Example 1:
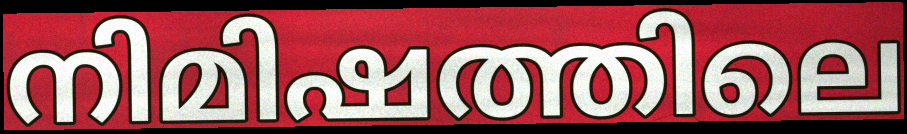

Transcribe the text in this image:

നിമിഷത്തിലെ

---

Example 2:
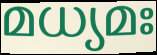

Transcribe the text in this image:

മധ്യമഃ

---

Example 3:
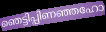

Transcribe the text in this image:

ഞെട്ടിപ്പിണഞ്ഞഹോ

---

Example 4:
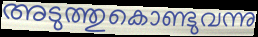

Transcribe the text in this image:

അടുത്തുകൊണ്ടുവന്നു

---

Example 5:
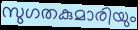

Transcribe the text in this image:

സുഗതകുമാരിയും